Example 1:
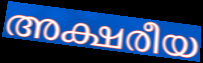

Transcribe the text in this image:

അക്ഷരീയ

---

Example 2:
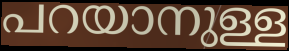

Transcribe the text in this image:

പറയാനുള്ള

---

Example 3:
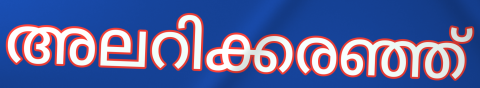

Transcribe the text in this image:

അലറിക്കരഞ്ഞ്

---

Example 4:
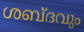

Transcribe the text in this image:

ശബ്ദവും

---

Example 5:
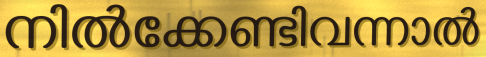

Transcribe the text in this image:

നിൽക്കേണ്ടിവന്നാൽ